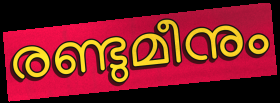
രണ്ടുമീനും